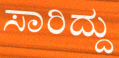
ಸಾರಿದ್ದು